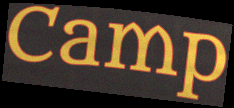
Camp